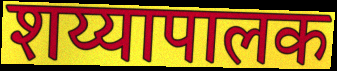
शय्यापालक